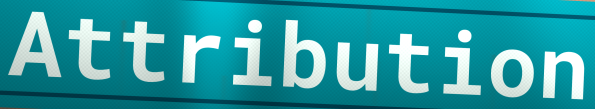
Attribution